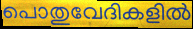
പൊതുവേദികളിൽ